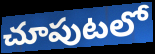
చూపుటలో